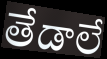
తేడాలే